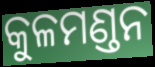
କୁଳମଣ୍ଡନ